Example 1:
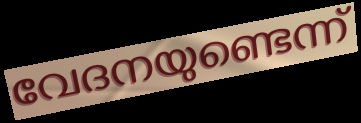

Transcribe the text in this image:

വേദനയുണ്ടെന്ന്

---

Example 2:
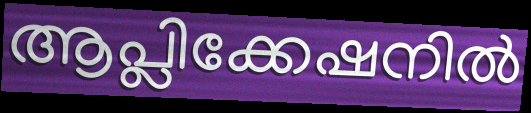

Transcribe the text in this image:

ആപ്ലിക്കേഷനിൽ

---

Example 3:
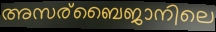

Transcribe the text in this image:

അസര്ബൈജാനിലെ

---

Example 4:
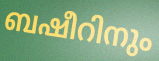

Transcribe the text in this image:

ബഷീറിനും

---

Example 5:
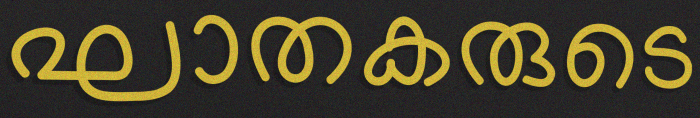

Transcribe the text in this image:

ഘാതകരുടെ